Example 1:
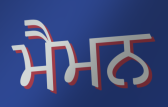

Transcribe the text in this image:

ਮੈਮਨ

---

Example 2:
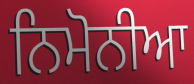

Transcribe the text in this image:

ਨਿਮੋਨੀਆ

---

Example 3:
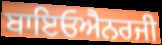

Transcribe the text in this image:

ਬਾਇਓਐਨਰਜੀ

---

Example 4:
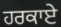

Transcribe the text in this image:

ਹਰਕਾਏ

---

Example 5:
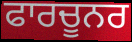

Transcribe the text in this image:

ਫਾਰਚੂਨਰ